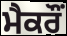
ਮੈਕਰੌਂ